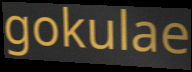
gokulae